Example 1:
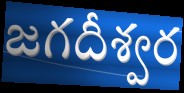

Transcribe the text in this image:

జగదీశ్వర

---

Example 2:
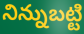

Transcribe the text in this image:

నిన్నుబట్టి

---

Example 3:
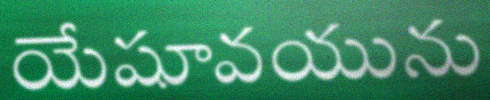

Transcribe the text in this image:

యేషూవయును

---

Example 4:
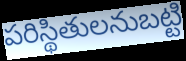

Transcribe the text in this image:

పరిస్థితులనుబట్టి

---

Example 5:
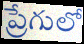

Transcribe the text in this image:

ప్రేగులో